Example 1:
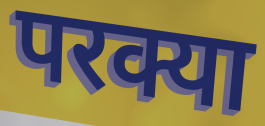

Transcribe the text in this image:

परक्या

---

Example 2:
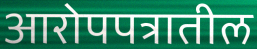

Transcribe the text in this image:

आरोपपत्रातील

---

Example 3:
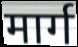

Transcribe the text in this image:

मार्ग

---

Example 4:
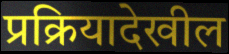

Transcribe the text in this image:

प्रक्रियादेखील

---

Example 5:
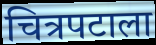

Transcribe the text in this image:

चित्रपटाला